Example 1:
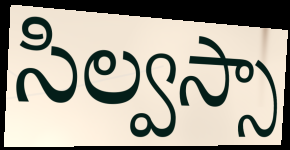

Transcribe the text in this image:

సిల్వస్సా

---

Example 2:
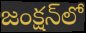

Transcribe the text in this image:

జంక్షన్‌లో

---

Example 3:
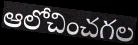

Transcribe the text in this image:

ఆలోచించగల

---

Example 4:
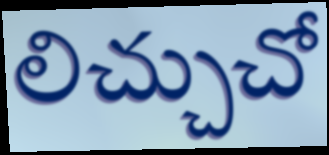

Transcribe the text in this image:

లిచ్చుచో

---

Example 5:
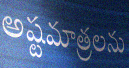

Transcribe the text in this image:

అష్టమాత్రలను